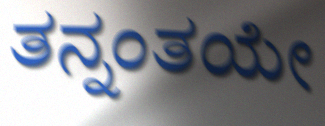
ತನ್ನಂತಯೇ